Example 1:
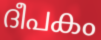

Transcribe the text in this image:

ദീപകം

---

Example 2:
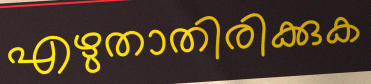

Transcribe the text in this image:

എഴുതാതിരിക്കുക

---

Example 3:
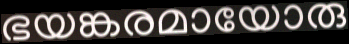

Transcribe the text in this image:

ഭയങ്കരമായോരു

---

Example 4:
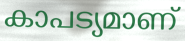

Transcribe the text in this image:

കാപട്യമാണ്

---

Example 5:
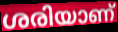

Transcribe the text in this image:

ശരിയാണ്